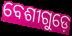
ବେଶୀଗୁଡ଼େ